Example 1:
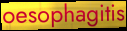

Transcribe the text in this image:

oesophagitis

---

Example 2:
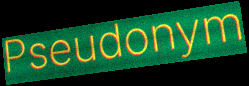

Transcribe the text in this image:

Pseudonym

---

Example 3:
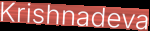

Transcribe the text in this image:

Krishnadeva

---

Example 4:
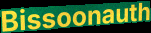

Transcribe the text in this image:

Bissoonauth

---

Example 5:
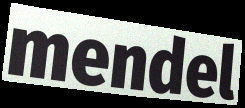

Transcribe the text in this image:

mendel